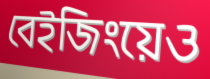
বেইজিংয়েও